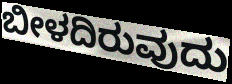
ಬೀಳದಿರುವುದು